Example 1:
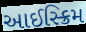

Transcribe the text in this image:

આઈસ્ક્રિમ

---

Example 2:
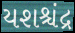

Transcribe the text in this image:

યશશ્ચંદ્ર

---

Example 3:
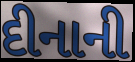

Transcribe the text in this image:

દીનાની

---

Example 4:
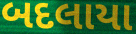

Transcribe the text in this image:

બદલાયા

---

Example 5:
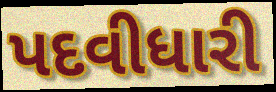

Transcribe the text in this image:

પદવીધારી